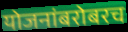
योजनांबरोबरच